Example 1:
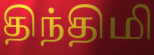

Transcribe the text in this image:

திந்திமி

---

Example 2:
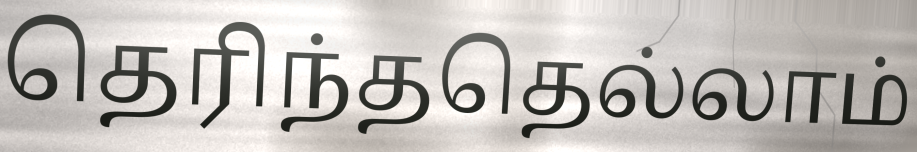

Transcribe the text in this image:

தெரிந்ததெல்லாம்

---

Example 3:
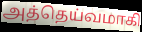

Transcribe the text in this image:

அத்தெய்வமாகி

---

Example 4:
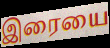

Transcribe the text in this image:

இரையை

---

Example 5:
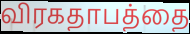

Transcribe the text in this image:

விரகதாபத்தை